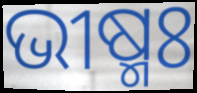
ଭୀଷ୍ମଃ